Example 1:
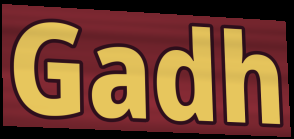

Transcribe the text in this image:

Gadh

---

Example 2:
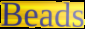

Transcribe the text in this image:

Beads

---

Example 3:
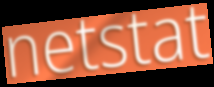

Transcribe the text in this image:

netstat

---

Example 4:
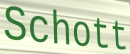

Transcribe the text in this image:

Schott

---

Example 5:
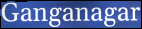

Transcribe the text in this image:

Ganganagar